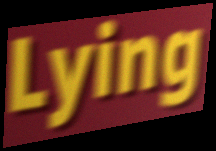
Lying